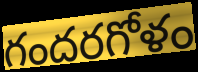
గందరగోళం